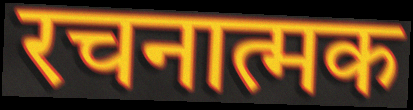
रचनात्मक